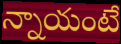
న్నాయంటే